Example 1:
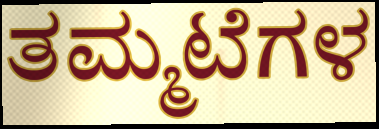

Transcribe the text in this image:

ತಮ್ಮಟೆಗಳ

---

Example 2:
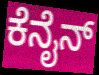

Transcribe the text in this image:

ಕೆನೈನ್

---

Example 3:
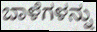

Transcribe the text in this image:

ಬಾಳೆಗಳನ್ನು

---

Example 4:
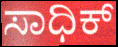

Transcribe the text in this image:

ಸಾಧಿಕ್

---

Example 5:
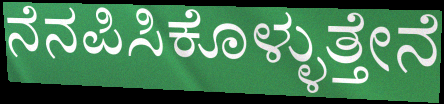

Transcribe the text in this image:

ನೆನಪಿಸಿಕೊಳ್ಳುತ್ತೇನೆ